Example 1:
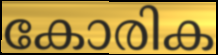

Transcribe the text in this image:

കോരിക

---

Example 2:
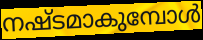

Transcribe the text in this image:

നഷ്ടമാകുമ്പോൾ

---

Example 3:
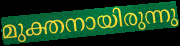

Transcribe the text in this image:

മുക്തനായിരുന്നു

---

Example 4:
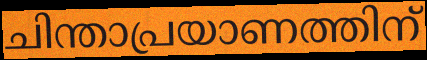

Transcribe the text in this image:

ചിന്താപ്രയാണത്തിന്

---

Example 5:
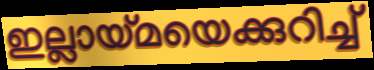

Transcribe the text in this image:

ഇല്ലായ്മയെക്കുറിച്ച്